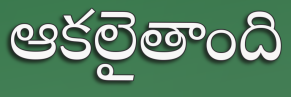
ఆకలైతాంది